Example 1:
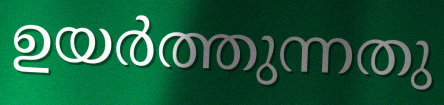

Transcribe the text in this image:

ഉയർത്തുന്നതു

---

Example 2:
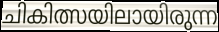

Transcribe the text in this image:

ചികിത്സയിലായിരുന്ന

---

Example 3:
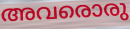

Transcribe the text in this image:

അവരൊരു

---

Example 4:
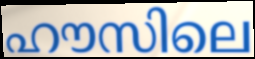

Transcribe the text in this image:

ഹൗസിലെ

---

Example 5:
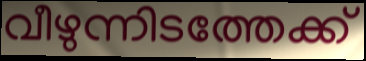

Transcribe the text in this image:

വീഴുന്നിടത്തേക്ക്